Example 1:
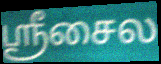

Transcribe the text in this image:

ஸ்ரீசைல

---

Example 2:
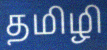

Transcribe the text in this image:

தமிழி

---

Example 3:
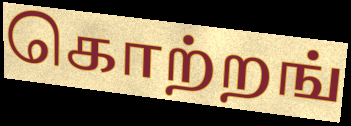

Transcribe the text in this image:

கொற்றங்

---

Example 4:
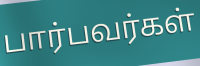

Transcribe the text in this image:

பார்பவர்கள்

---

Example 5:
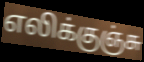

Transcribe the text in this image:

எலிக்குஞ்சு